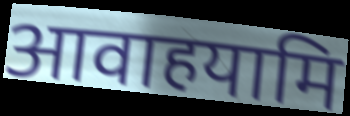
आवाहयामि